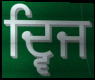
ਦ੍ਵਿਜ